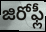
జిరోఫ్లీ